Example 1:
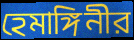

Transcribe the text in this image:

হেমাঙ্গিনীর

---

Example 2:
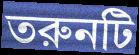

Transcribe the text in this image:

তরুনটি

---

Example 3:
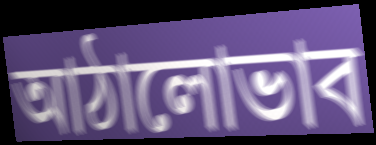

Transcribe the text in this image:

আঠালোভাব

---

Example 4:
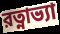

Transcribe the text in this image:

রত্নাভ্যা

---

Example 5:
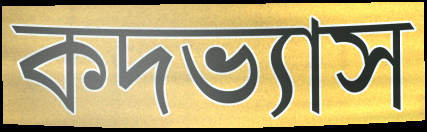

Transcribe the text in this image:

কদভ্যাস